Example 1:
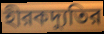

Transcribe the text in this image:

হীরকদ্যুতির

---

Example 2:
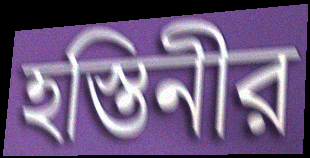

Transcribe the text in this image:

হস্তিনীর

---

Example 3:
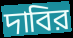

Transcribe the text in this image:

দাবির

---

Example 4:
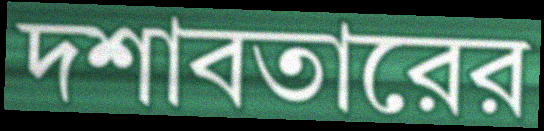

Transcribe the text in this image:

দশাবতারের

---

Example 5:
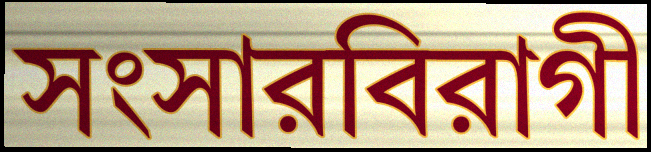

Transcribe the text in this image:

সংসারবিরাগী